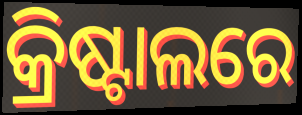
କ୍ରିଷ୍ଟାଲରେ